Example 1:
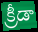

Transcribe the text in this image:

క్రీడా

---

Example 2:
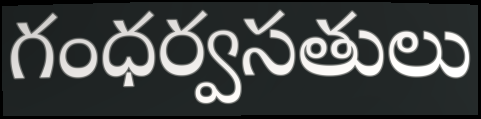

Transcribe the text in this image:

గంధర్వసతులు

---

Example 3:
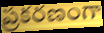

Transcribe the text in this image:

ప్రకరణంగా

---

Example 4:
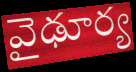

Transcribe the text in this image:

వైఢూర్య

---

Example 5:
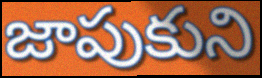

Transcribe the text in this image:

జాపుకుని